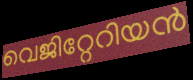
വെജിറ്റേറിയൻ